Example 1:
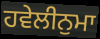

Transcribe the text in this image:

ਹਵੇਲੀਨੁਮਾ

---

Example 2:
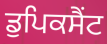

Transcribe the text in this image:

ਡੁਪਿਕਸੈਂਟ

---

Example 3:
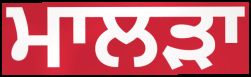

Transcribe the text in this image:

ਮਾਲੜਾ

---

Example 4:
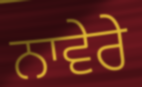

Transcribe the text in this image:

ਨਾਵੇਰੇ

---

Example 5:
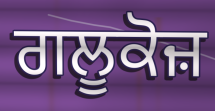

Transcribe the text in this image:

ਗਲੂਕੋਜ਼